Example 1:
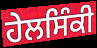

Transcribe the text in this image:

ਹੇਲਸਿੰਕੀ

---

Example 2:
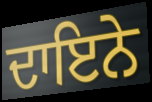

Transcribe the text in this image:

ਦਾਇਨੇ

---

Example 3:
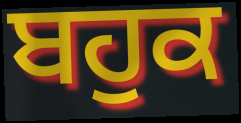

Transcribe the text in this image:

ਬਹੁਕ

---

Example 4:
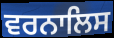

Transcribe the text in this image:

ਵਰਨਾਲਿਸ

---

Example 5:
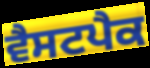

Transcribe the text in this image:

ਵੈਸਟਪੈਕ